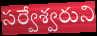
సర్వేశ్వరుని